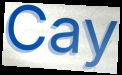
Cay